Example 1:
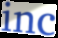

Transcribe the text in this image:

inc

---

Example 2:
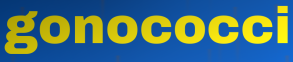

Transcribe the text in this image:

gonococci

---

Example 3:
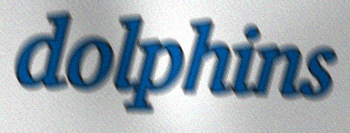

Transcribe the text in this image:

dolphins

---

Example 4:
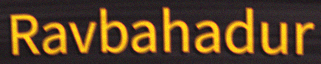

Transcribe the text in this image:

Ravbahadur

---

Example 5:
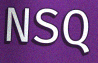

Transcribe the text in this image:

NSQ